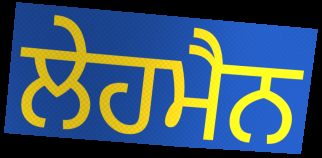
ਲੇਹਮੈਨ